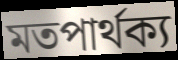
মতপাৰ্থক্য